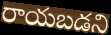
రాయబడని